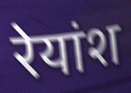
रेयांश